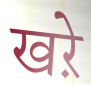
खऱे